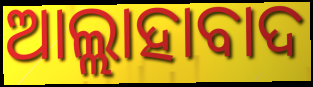
ଆଲ୍ଲାହାବାଦ